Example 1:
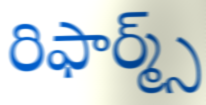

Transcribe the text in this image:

రిఫార్మ్స్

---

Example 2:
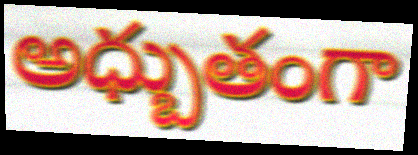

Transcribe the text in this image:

అధ్బుతంగా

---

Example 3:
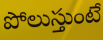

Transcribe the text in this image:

పోలుస్తుంటే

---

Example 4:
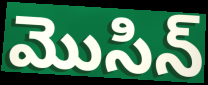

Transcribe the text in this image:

మొసిన్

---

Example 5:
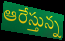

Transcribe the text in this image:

ఆరేస్తున్న